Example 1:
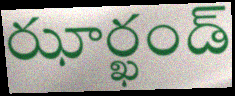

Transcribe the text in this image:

ఝార్ఖండ్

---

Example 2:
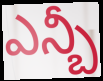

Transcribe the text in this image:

ఎన్బీ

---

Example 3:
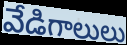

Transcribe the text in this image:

వేడిగాలులు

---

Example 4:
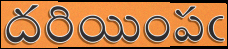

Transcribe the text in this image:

దరియింపఁ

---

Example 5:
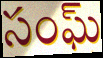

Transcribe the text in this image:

సంఘ్